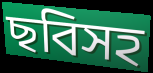
ছবিসহ